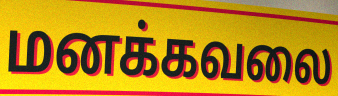
மனக்கவலை